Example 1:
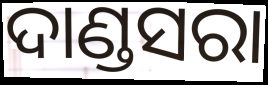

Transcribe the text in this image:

ଦାଣ୍ଡସରା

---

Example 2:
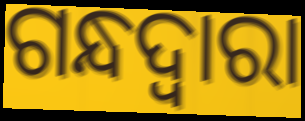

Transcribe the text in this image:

ଗନ୍ଧଦ୍ୱାରା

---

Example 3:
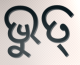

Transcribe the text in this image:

ଭୁତ୍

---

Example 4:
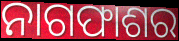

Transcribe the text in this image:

ନାଗଫାଶର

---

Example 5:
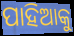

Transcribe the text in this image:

ପାହିଆକୁ